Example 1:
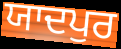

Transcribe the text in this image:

ਯਾਦਪੁਰ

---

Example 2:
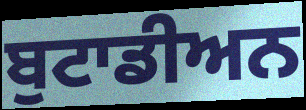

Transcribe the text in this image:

ਬੁਟਾਡੀਅਨ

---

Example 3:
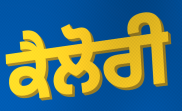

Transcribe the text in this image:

ਕੈਲੋਰੀ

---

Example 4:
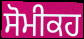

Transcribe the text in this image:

ਸੋਮੀਕਹ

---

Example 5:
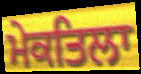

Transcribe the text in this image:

ਮੇਕਤਿਲਾ